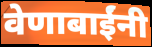
वेणाबाईंनी